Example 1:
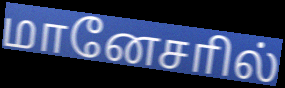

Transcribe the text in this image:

மானேசரில்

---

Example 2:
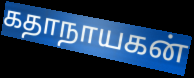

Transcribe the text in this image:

கதாநாயகன்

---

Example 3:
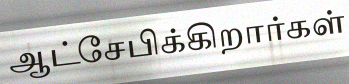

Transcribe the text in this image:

ஆட்சேபிக்கிறார்கள்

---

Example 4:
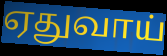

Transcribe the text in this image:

ஏதுவாய்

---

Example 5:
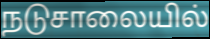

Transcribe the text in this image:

நடுசாலையில்